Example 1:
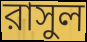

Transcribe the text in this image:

রাসুল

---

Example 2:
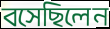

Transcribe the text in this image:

বসেছিলেন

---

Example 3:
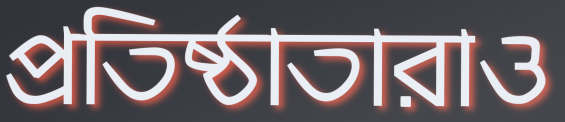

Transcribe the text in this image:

প্রতিষ্ঠাতারাও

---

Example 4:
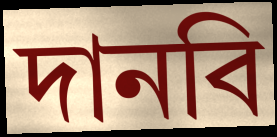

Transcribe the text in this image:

দানবি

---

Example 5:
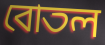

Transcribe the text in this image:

বোতল